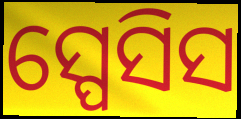
ସ୍ପେସିସ